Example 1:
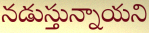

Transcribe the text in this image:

నడుస్తున్నాయని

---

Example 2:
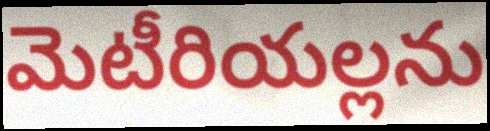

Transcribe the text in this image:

మెటీరియల్లను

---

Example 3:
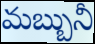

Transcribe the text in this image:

మబ్బునీ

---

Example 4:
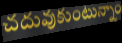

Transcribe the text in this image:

చదువుకుంటున్నాం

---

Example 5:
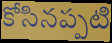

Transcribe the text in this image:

కోసినప్పటి